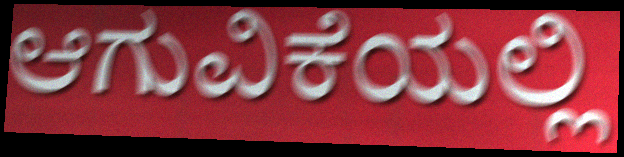
ಆಗುವಿಕೆಯಲ್ಲಿ